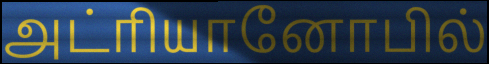
அட்ரியானோபில்